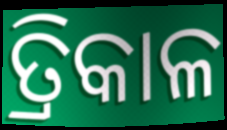
ତ୍ରିକାଳ